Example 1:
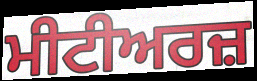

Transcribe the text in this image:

ਮੀਟੀਅਰਜ਼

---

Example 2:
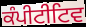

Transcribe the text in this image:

ਕੰਪੀਟੀਟਿਵ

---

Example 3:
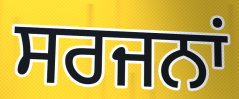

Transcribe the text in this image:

ਸਰਜਨਾਂ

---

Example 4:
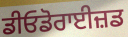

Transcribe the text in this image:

ਡੀਓਡੋਰਾਈਜ਼ਡ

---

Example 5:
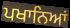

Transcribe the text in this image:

ਪਖਾਨਿਆਂ